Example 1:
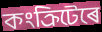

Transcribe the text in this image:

কংক্ৰিটেৰে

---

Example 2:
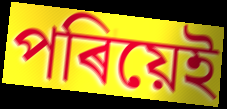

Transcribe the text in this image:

পৰিয়েই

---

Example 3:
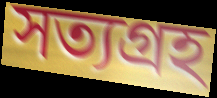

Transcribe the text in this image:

সত্যগ্ৰহ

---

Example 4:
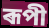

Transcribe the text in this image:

ৰূপী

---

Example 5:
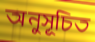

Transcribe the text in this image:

অনুসূচিত